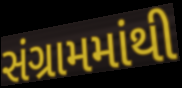
સંગ્રામમાંથી